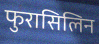
फुरासिलिन